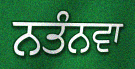
ਨਤੰਨਵਾ